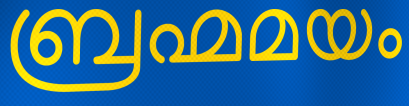
ബ്രഹ്മമയം